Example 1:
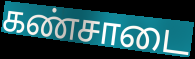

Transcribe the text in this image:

கண்சாடை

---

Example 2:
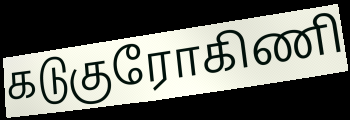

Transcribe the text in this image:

கடுகுரோகிணி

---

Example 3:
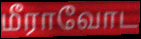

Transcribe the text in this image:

மீராவோட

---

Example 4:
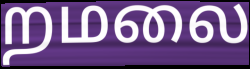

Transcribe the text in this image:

றமலை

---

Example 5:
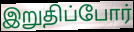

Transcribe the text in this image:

இறுதிப்போர்